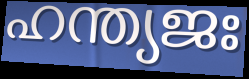
ഹന്ത്യജഃ